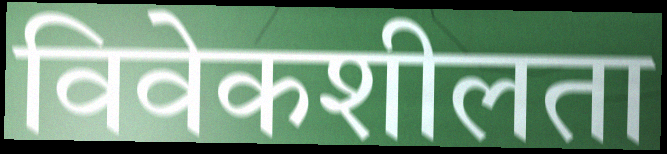
विवेकशीलता